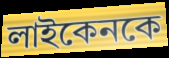
লাইকেনকে